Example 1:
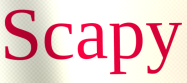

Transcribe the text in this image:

Scapy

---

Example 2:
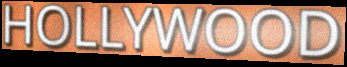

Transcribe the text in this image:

HOLLYWOOD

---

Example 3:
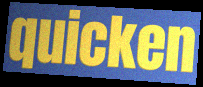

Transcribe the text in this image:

quicken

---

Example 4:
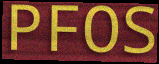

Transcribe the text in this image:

PFOS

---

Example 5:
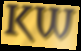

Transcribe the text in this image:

KW